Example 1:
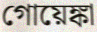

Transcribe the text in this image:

গোয়েঙ্কা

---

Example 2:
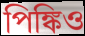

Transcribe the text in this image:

পিঙ্কিও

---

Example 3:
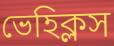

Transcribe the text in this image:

ভেহিক্লস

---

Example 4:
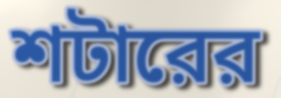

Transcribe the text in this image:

শটারের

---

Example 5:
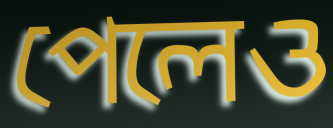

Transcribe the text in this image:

পেলেও